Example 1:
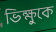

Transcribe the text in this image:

ভিক্ষুকে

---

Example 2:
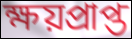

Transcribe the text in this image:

ক্ষয়প্রাপ্ত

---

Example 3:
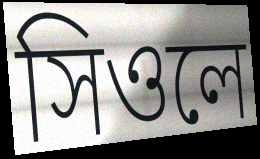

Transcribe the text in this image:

সিওলে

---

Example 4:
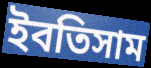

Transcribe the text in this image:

ইবতিসাম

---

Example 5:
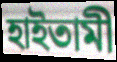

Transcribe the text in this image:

হাইতামী